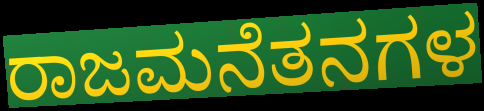
ರಾಜಮನೆತನಗಳ